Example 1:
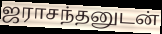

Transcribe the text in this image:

ஜராசந்தனுடன்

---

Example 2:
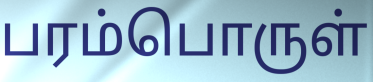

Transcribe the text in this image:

பரம்பொருள்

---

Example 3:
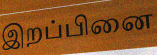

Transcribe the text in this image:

இறப்பினை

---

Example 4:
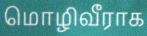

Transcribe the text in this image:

மொழிவீராக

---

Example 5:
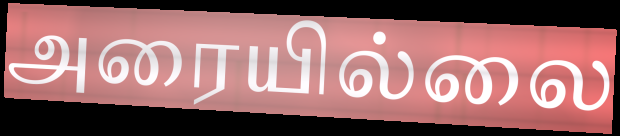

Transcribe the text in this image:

அரையில்லை